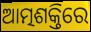
ଆତ୍ମଶକ୍ତିରେ